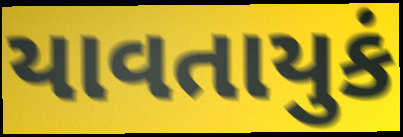
યાવતાયુકં